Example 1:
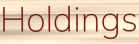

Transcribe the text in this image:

Holdings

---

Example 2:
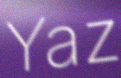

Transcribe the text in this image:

Yaz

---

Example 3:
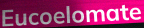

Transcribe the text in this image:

Eucoelomate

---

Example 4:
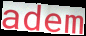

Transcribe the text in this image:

adem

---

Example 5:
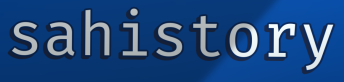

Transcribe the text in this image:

sahistory